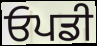
ਓਪਡੀ